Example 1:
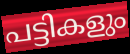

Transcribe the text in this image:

പട്ടികളും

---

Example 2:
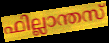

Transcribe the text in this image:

ഫില്ലാന്തസ്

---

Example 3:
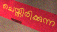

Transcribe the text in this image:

ചെയ്തിരിക്കുന്ന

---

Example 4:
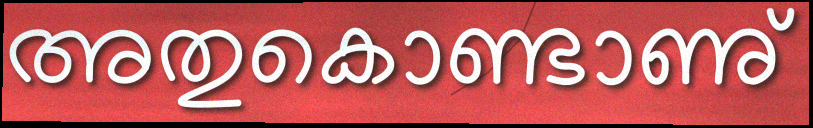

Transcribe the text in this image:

അതുകൊണ്ടാണു്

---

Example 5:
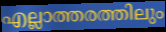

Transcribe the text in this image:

എല്ലാത്തരത്തിലും